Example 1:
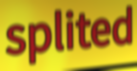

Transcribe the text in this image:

splited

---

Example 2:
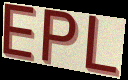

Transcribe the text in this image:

EPL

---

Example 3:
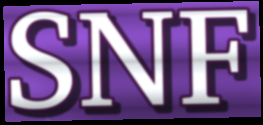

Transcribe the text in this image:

SNF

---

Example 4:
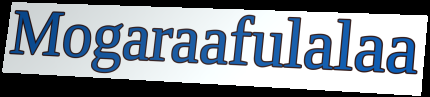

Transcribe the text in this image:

Mogaraafulalaa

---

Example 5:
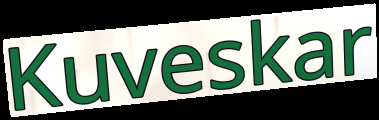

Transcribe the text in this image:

Kuveskar